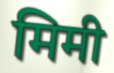
मिमी